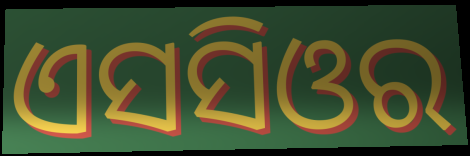
ଏସସିଓର